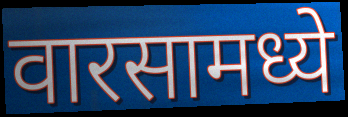
वारसामध्ये